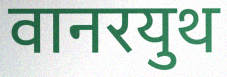
वानरयुथ